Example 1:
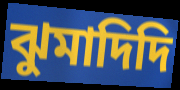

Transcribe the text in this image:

ঝুমাদিদি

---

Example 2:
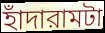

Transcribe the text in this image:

হাঁদারামটা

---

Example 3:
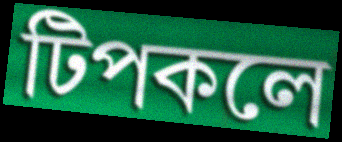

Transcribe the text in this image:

টিপকলে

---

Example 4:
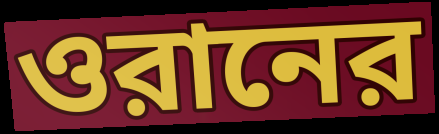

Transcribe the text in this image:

ওরানের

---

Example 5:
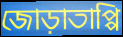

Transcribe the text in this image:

জোড়াতাপ্পি